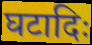
घटादिः